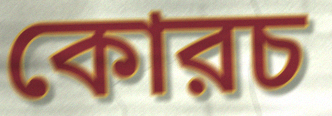
কোরচ